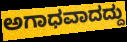
ಅಗಾಧವಾದದ್ದು